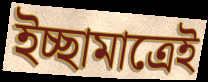
ইচ্ছামাত্রেই